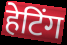
हेटिंग